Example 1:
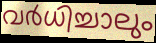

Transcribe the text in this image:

വർധിച്ചാലും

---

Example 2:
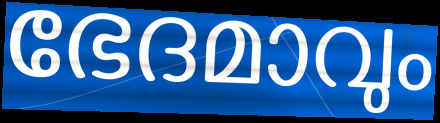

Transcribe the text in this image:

ഭേദമാവും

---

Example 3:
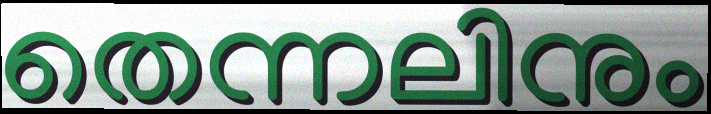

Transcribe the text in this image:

തെന്നലിനും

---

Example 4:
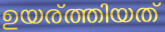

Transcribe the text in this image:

ഉയര്ത്തിയത്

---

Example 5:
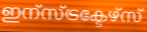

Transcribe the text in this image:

ഇന്സ്ട്രക്ടേഴ്സ്